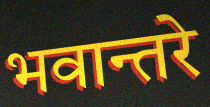
भवान्तरे